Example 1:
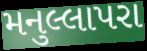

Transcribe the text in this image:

મનુલ્લાપરા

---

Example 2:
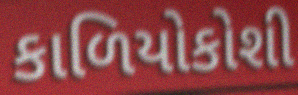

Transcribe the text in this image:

કાળિયોકોશી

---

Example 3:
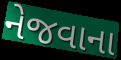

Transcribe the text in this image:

નેજવાના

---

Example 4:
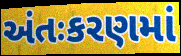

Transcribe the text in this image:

અંતઃકરણમાં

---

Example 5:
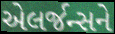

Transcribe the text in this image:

એલર્જન્સને